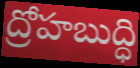
ద్రోహబుద్ధి